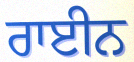
ਰਾਈਨ